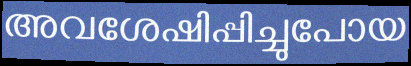
അവശേഷിപ്പിച്ചുപോയ